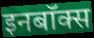
इनबॉक्स